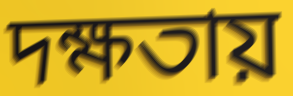
দক্ষতায়